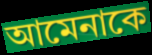
আমেনাকে